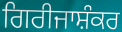
ਗਿਰੀਜਾਸ਼ੰਕਰ